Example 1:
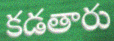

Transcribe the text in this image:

కడతారు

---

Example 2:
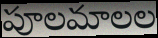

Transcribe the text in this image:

పూలమాలల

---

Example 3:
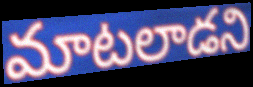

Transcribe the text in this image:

మాటలాడని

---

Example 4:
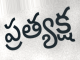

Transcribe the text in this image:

ప్రత్యక్ష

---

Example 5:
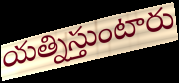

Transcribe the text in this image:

యత్నిస్తుంటారు